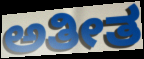
ಅತೀತ